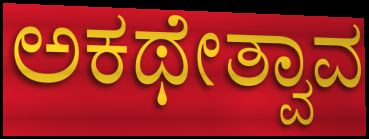
ಅಕಥೇತ್ವಾವ